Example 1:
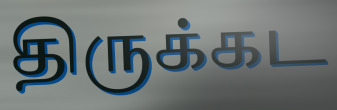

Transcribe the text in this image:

திருக்கட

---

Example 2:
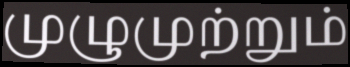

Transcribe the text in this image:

முழுமுற்றும்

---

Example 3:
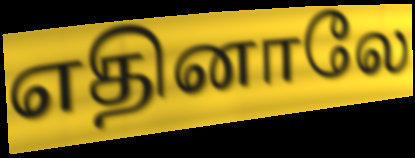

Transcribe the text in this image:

எதினாலே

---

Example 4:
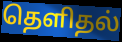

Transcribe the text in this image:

தெளிதல்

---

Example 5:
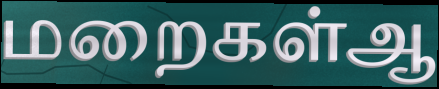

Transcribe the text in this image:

மறைகள்ஆ